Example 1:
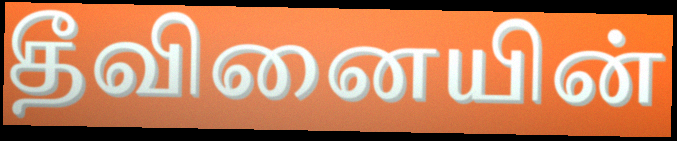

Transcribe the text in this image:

தீவினையின்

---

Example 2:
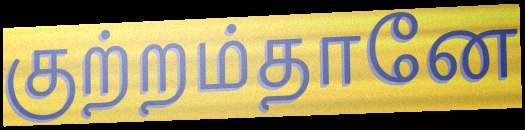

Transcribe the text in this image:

குற்றம்தானே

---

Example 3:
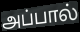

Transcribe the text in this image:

அப்பால்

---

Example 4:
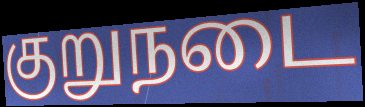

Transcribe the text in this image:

குறுநடை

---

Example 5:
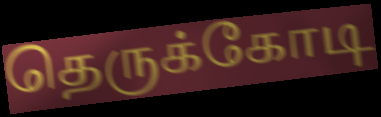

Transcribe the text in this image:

தெருக்கோடி